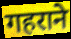
गहराने